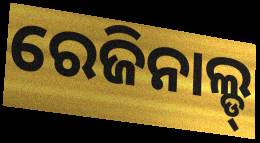
ରେଜିନାଲ୍ଡ୍